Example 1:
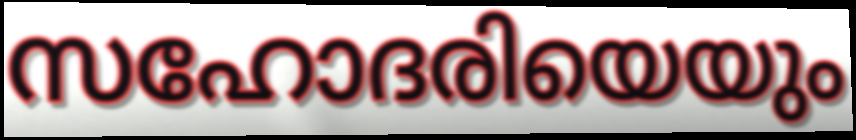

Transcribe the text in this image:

സഹോദരിയെയും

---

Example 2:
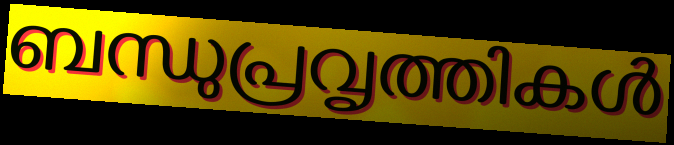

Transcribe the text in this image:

ബന്ധുപ്രവൃത്തികൾ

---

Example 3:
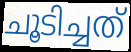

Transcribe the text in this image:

ചൂടിച്ചത്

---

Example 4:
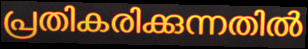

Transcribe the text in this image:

പ്രതികരിക്കുന്നതിൽ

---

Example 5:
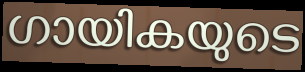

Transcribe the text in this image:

ഗായികയുടെ